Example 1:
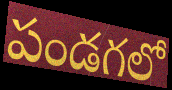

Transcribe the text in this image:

పండగలో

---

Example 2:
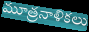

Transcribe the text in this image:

మూత్రనాళికలు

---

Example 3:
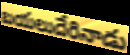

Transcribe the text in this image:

బయలుదేరినాడు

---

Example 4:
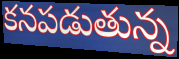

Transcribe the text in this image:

కనపడుతున్న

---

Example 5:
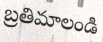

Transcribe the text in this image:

బ్రతిమాలండి